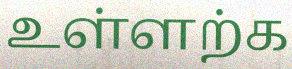
உள்ளற்க